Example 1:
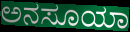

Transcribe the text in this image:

ಅನಸೂಯಾ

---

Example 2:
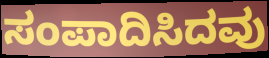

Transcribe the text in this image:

ಸಂಪಾದಿಸಿದವು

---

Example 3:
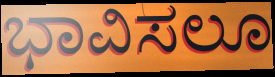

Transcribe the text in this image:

ಭಾವಿಸಲೂ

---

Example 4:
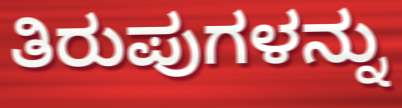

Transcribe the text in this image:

ತಿರುಪುಗಳನ್ನು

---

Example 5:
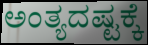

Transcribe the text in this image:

ಅಂತ್ಯದಷ್ಟಕ್ಕೆ